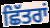
ਛਿੱਤਰਾਂ